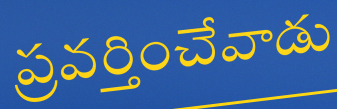
ప్రవర్తించేవాడు